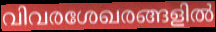
വിവരശേഖരങ്ങളിൽ